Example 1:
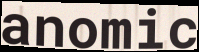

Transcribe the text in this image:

anomic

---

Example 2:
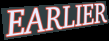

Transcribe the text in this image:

EARLIER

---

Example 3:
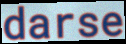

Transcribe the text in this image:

darse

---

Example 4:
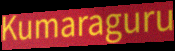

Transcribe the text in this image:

Kumaraguru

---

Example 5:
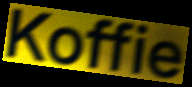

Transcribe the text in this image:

Koffie